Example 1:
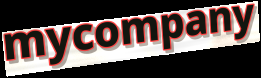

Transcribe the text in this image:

mycompany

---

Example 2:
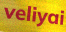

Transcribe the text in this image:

veliyai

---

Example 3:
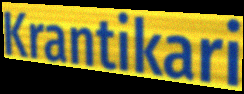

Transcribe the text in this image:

Krantikari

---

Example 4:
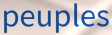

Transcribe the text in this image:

peuples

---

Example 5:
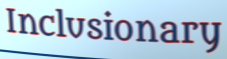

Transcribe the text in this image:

Inclusionary